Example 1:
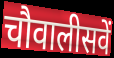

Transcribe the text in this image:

चौवालीसवें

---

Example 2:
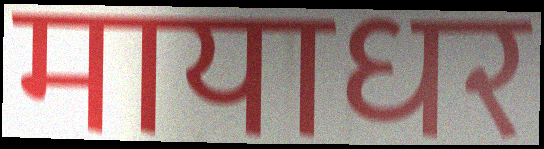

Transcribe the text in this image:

मायाधर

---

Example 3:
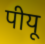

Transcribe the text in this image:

पीयू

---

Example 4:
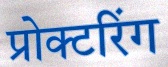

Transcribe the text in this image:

प्रोक्टरिंग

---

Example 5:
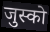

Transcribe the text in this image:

जुस्को